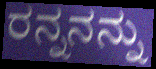
ರನ್ನನನ್ನು